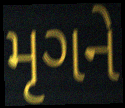
મૃગને